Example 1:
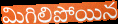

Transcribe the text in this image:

మిగిలిపోయిన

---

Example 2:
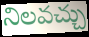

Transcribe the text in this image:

నిలవచ్చు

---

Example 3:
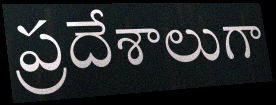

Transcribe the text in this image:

ప్రదేశాలుగా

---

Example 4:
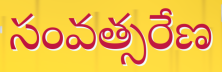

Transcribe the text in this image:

సంవత్సరేణ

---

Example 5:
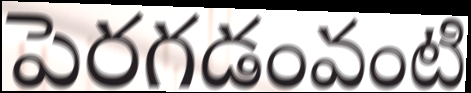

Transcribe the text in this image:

పెరగడంవంటి